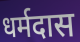
धर्मदास